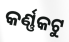
କର୍ଣ୍ଣକଟୁ